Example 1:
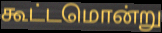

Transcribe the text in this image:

கூட்டமொன்று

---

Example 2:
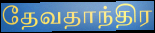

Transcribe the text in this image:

தேவதாந்திர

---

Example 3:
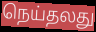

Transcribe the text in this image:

நெய்தலது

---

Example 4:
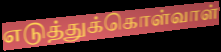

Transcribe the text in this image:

எடுத்துக்கொள்வாள்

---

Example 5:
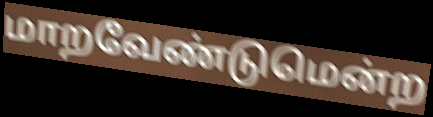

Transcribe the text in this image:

மாறவேண்டுமென்ற